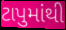
ટાપુમાંથી